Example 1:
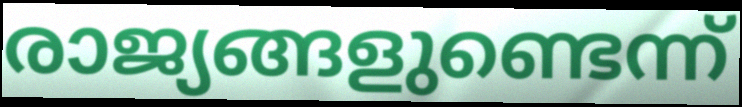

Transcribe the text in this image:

രാജ്യങ്ങളുണ്ടെന്ന്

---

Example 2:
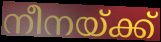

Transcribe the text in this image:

നീനയ്ക്ക്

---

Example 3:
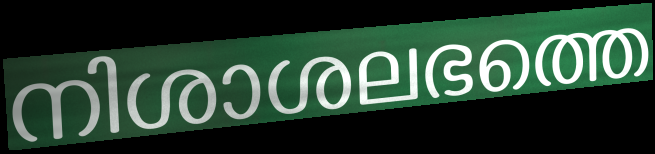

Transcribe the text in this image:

നിശാശലഭത്തെ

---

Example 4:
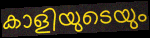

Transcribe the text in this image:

കാളിയുടെയും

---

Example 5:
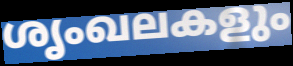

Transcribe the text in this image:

ശൃംഖലകളും